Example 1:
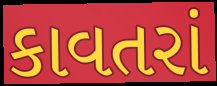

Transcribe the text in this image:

કાવતરાં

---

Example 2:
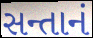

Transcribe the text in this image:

સન્તાનં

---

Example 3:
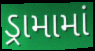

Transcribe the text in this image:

ડ્રામામાં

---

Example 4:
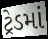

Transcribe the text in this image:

ટ્રેડમાં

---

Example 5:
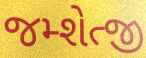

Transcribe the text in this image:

જમ્શેત્જી